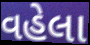
વહેલા